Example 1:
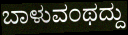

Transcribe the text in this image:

ಬಾಳುವಂಥದ್ದು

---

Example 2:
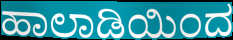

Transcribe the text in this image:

ಹಾಲಾಡಿಯಿಂದ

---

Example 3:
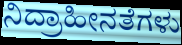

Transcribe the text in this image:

ನಿದ್ರಾಹೀನತೆಗಳು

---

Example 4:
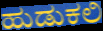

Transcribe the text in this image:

ಹುಡುಕಲಿ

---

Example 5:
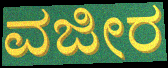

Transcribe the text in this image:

ವಜೀರ